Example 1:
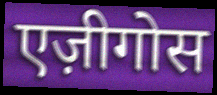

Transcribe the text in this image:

एज़ीगोस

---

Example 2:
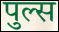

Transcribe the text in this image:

पुल्स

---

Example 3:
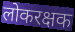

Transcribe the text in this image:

लोकरक्षक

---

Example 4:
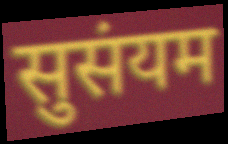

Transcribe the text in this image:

सुसंयम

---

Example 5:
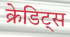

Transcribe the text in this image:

क्रेडिट्स